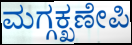
ಮಗ್ಗಕ್ಖಣೇಪಿ